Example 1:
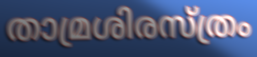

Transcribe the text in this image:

താമ്രശിരസ്ത്രം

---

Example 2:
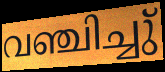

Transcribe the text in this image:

വഞ്ചിച്ചു്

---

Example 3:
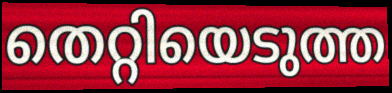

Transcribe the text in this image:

തെറ്റിയെടുത്ത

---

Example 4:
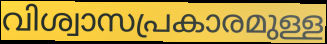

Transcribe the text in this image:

വിശ്വാസപ്രകാരമുള്ള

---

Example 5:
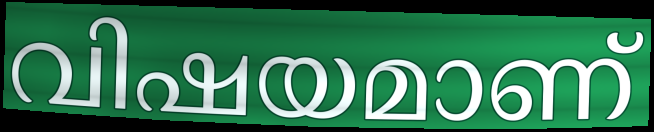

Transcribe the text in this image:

വിഷയമാണ്